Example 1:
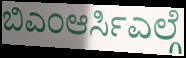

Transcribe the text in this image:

ಬಿಎಂಆರ್ಸಿಎಲ್ಗೆ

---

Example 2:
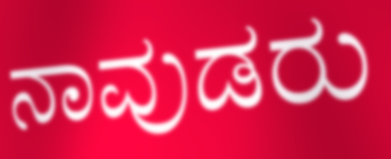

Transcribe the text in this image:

ನಾವುಡರು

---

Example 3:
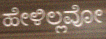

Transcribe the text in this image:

ಹೇಳಿಲ್ಲವೋ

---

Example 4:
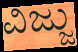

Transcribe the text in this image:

ವಿಜ್ಜು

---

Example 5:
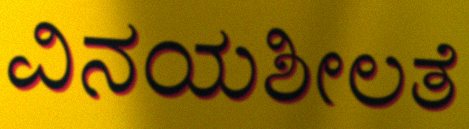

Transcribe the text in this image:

ವಿನಯಶೀಲತೆ